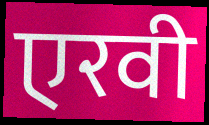
एरवी